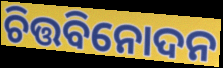
ଚିତ୍ତବିନୋଦନ